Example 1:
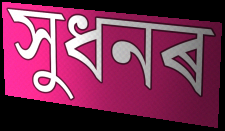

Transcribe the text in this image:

সুধনৰ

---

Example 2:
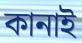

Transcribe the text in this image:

কানাই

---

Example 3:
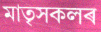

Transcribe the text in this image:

মাতৃসকলৰ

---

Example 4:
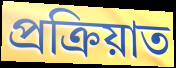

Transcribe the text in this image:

প্ৰক্ৰিয়াত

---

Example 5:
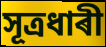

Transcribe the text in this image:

সূত্ৰধাৰী